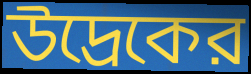
উদ্রেকের